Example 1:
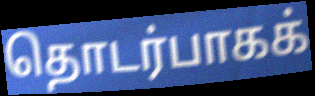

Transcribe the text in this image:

தொடர்பாகக்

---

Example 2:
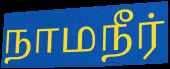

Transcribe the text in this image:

நாமநீர்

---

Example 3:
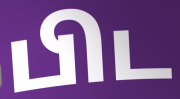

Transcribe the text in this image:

பிட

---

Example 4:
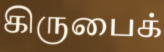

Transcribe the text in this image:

கிருபைக்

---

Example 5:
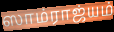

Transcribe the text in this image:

ஸாம்ராஜ்யம்